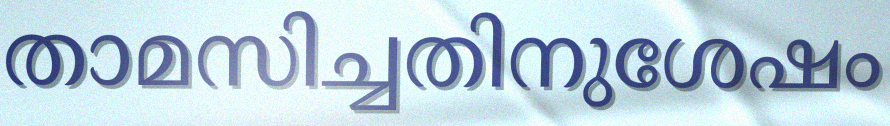
താമസിച്ചതിനുശേഷം